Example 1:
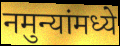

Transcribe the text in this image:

नमुन्यांमध्ये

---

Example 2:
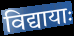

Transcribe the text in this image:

विद्यायाः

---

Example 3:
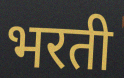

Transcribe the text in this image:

भरती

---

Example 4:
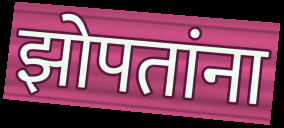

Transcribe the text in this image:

झोपतांना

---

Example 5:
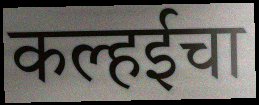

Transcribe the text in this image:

कल्हईचा